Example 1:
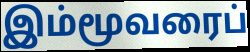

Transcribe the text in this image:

இம்மூவரைப்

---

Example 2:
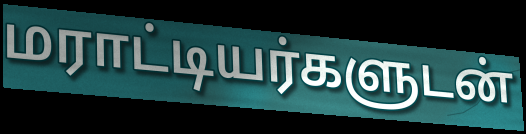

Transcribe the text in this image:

மராட்டியர்களுடன்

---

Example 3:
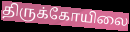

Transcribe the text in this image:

திருக்கோயிலை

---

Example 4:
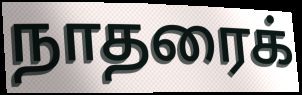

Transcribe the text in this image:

நாதரைக்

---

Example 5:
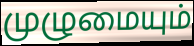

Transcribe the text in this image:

முழுமையும்